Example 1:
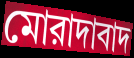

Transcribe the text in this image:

মোরাদাবাদ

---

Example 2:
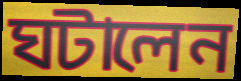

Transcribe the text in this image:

ঘটালেন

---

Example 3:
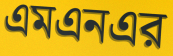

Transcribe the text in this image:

এমএনএর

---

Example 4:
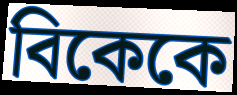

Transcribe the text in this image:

বিকেকে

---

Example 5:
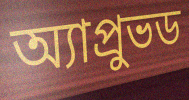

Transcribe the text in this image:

অ্যাপ্রুভড